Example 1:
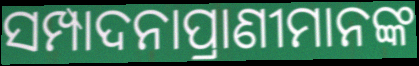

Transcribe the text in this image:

ସମ୍ପାଦନାପ୍ରାଣୀମାନଙ୍କ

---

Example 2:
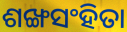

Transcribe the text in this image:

ଶଙ୍ଖସଂହିତା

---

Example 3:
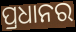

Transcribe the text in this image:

ପ୍ରଧାନର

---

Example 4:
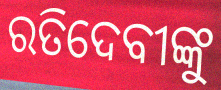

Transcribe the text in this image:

ରତିଦେବୀଙ୍କୁ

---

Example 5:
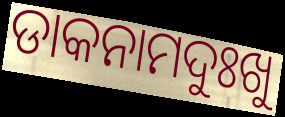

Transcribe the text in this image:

ଡାକନାମଦୁଃଖୁ